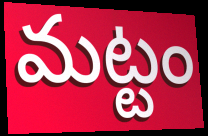
మట్టం